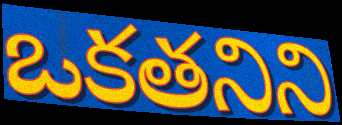
ఒకతనిని